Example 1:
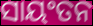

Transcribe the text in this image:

ସାୟଂତନ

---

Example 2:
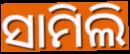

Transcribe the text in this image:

ସାମିଲି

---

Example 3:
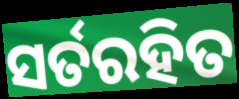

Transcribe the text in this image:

ସର୍ତରହିତ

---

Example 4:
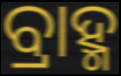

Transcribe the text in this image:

ବ୍ରାହ୍ମ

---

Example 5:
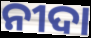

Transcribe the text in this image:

ନୀଦା